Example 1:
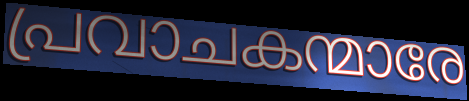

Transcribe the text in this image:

പ്രവാചകന്മാരേ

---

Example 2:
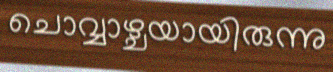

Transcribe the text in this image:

ചൊവ്വാഴ്ചയായിരുന്നു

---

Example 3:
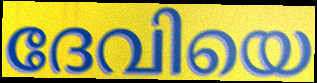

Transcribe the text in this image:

ദേവിയെ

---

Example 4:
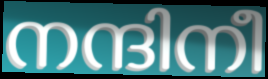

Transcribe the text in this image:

നന്ദിനീ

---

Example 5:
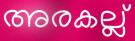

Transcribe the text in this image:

അരകല്ല്